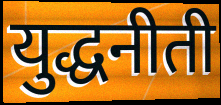
युद्धनीती